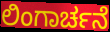
ಲಿಂಗಾರ್ಚನೆ